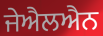
ਜੇਐਲਐਨ